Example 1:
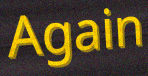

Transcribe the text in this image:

Again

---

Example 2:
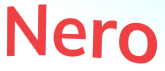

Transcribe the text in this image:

Nero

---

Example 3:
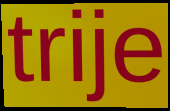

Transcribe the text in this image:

trije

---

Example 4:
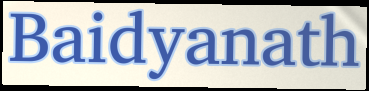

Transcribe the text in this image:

Baidyanath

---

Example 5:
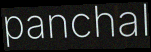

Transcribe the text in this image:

panchal